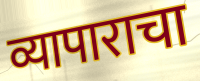
व्यापाराचा